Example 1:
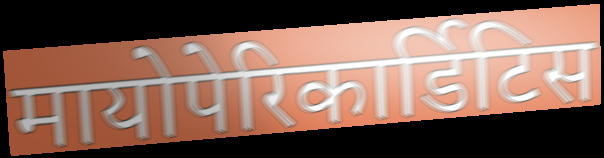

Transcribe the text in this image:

मायोपेरिकार्डिटिस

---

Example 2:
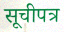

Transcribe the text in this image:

सूचीपत्र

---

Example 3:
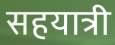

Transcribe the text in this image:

सहयात्री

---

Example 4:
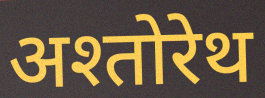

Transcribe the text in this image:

अश्तोरेथ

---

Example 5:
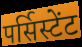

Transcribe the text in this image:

पर्सिस्टेंट